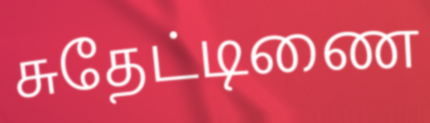
சுதேட்டிணை